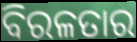
ବିରଳତାର